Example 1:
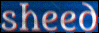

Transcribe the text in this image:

sheed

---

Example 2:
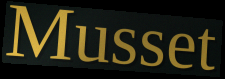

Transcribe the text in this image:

Musset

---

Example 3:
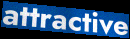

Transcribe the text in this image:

attractive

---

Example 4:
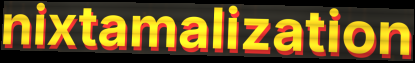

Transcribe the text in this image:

nixtamalization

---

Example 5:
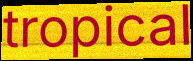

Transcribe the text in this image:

tropical